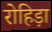
रोहिड़ा